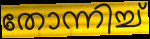
തോന്നിച്ച്